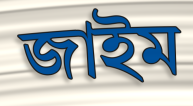
জাইম